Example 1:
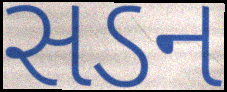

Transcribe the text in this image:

સડન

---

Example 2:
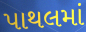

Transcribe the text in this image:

પાથલમાં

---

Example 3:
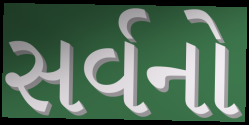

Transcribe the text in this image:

સર્વનો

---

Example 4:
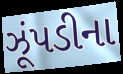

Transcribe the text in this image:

ઝૂંપડીના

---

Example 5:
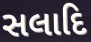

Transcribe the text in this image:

સલાદિ